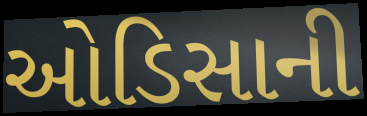
ઓડિસાની